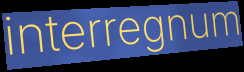
interregnum